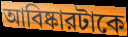
আবিষ্কারটাকে